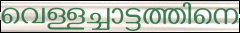
വെള്ളച്ചാട്ടത്തിനെ